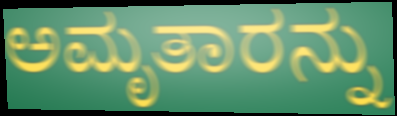
ಅಮೃತಾರನ್ನು